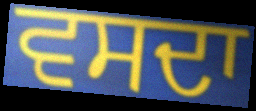
ਵਸਦਾ